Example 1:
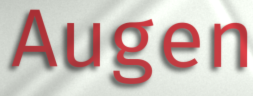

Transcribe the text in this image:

Augen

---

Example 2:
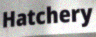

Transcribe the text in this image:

Hatchery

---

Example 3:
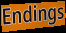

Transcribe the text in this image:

Endings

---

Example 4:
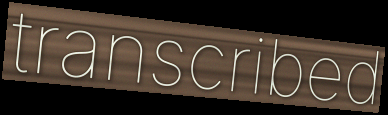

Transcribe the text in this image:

transcribed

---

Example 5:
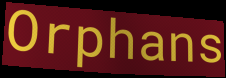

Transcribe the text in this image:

Orphans